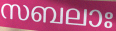
സബലാഃ